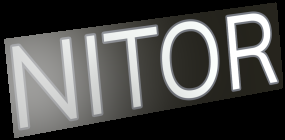
NITOR